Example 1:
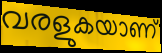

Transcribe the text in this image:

വരളുകയാണ്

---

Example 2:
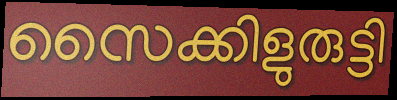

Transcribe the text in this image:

സൈക്കിളുരുട്ടി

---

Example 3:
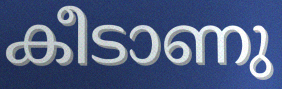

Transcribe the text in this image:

കീടാണു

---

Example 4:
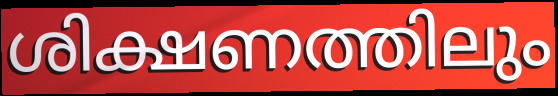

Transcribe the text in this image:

ശിക്ഷണത്തിലും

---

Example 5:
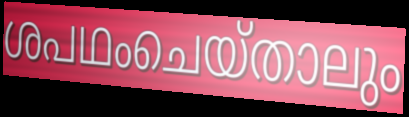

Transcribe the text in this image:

ശപഥംചെയ്താലും